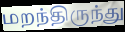
மறந்திருந்து